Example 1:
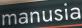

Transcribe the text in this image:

manusia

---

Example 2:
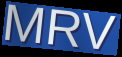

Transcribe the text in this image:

MRV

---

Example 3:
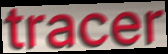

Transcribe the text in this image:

tracer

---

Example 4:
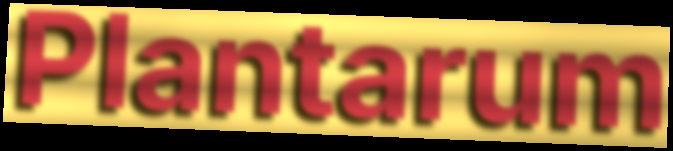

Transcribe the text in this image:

Plantarum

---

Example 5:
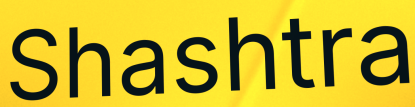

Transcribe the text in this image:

Shashtra